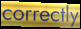
correctly